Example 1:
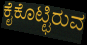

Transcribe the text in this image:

ಕೈಕೊಟ್ಟಿರುವ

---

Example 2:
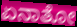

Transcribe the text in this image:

ಏನಾತೋ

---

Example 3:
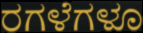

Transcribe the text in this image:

ರಗಳೆಗಳೂ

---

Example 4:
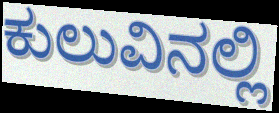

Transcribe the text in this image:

ಕುಲುವಿನಲ್ಲಿ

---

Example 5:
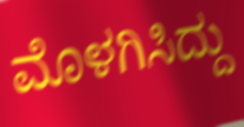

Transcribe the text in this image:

ಮೊಳಗಿಸಿದ್ದು